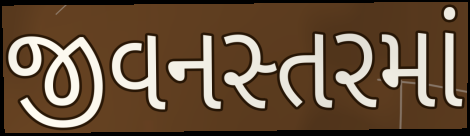
જીવનસ્તરમાં